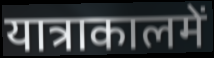
यात्राकालमें